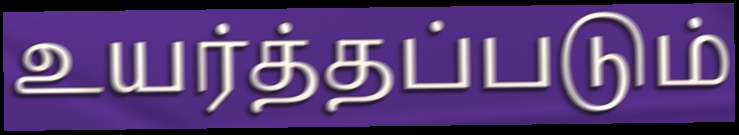
உயர்த்தப்படும்